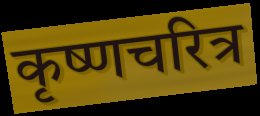
कृष्णचरित्र